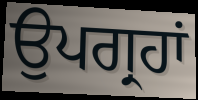
ਉਪਗ੍ਰਹਾਂ